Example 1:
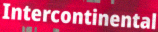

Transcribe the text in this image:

Intercontinental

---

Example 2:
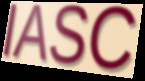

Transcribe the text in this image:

IASC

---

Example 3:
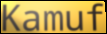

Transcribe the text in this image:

Kamuf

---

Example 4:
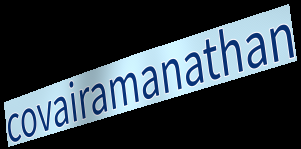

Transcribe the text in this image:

covairamanathan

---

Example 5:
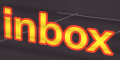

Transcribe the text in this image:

inbox